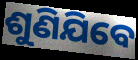
ଶୁଣିଯିବେ